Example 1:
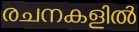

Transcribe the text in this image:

രചനകളിൽ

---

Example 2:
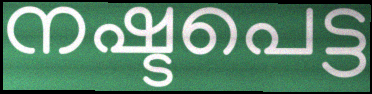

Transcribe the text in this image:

നഷ്ടപെട്ട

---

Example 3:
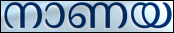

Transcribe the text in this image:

നാണയ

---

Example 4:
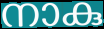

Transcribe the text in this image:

നാകു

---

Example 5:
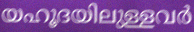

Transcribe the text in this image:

യഹൂദയിലുള്ളവർ